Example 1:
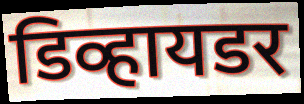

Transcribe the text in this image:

डिव्हायडर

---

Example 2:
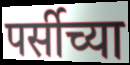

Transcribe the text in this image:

पर्सीच्या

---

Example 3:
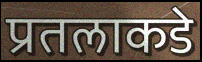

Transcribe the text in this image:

प्रतलाकडे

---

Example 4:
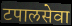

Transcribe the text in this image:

टपालसेवा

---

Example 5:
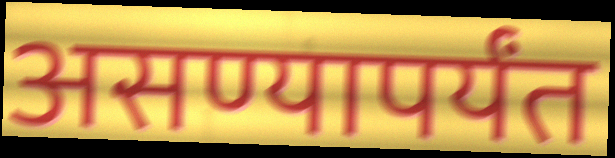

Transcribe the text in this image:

असण्यापर्यंत